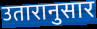
उतारानुसार